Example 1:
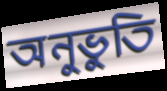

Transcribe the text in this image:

অনুভুতি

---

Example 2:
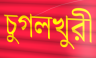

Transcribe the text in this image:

চুগলখুরী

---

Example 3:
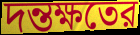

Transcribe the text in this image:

দন্তক্ষতের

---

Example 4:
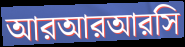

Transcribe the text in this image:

আরআরআরসি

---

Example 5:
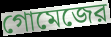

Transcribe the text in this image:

গোমেজের